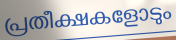
പ്രതീക്ഷകളോടും